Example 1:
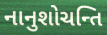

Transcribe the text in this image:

નાનુશોચન્તિ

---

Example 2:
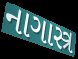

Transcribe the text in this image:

નાગાસ્ત્ર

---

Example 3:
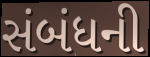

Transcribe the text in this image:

સંબંધની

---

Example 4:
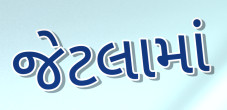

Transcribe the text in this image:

જેટલામાં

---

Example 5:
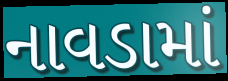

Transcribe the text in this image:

નાવડામાં